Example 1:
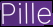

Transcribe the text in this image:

Pille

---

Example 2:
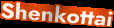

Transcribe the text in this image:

Shenkottai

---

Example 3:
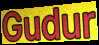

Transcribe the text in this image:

Gudur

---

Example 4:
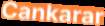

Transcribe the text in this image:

Cankarar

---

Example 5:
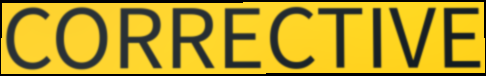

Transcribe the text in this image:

CORRECTIVE